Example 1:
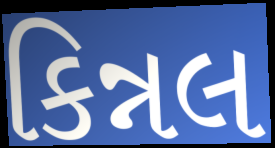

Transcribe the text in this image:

કિન્નલ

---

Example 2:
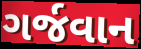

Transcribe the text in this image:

ગર્જવાન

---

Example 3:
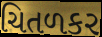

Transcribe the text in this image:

ચિતળકર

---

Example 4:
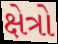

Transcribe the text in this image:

ક્ષેત્રો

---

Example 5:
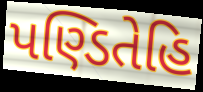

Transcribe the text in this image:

પણ્ડિતેહિ